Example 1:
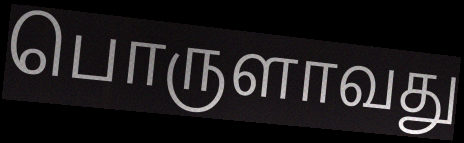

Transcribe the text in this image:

பொருளாவது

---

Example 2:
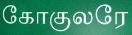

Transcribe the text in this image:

கோகுலரே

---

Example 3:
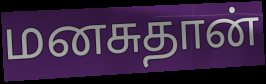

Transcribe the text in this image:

மனசுதான்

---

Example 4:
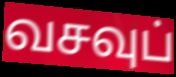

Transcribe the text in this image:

வசவுப்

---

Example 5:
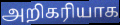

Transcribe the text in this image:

அறிகரியாக